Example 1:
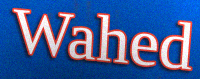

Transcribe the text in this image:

Wahed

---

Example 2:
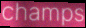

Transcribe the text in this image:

champs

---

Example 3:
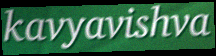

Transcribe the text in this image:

kavyavishva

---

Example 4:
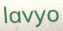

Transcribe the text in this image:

lavyo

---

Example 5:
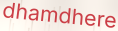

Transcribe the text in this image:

dhamdhere